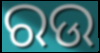
ରଉ